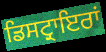
ਡਿਸਟ੍ਰਾਇਰਾਂ